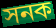
সনক